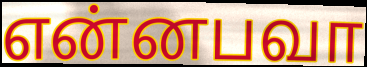
என்னபவா